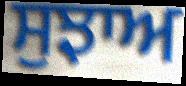
ਸੁਝਾਅ